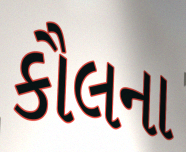
કૌલના